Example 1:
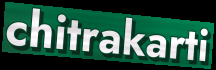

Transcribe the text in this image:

chitrakarti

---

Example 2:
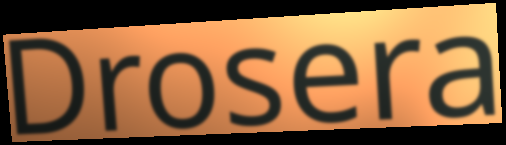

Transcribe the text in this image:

Drosera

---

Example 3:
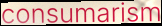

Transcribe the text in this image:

consumarism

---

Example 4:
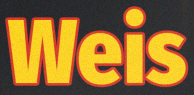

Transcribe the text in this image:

Weis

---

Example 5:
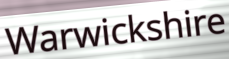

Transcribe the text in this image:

Warwickshire